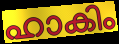
ഹാകിം